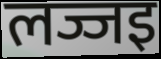
लज्जइ